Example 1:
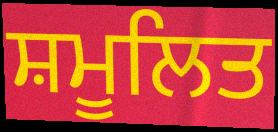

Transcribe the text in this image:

ਸ਼ਮੂਲਿਤ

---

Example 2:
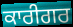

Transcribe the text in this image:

ਕਾਰੀਗਰ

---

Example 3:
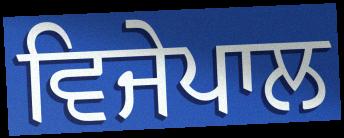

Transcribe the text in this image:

ਵਿਜੇਪਾਲ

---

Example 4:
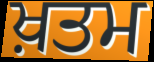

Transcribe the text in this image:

ਖ਼ਤਮ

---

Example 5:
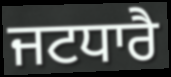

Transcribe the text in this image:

ਜਟਧਾਰੈ